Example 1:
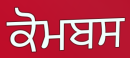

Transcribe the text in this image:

ਕੋਮਬਸ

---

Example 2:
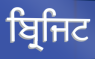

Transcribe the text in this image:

ਬ੍ਰਿਜਿਟ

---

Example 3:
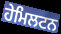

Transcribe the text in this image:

ਹੇਮਿਲਟਨ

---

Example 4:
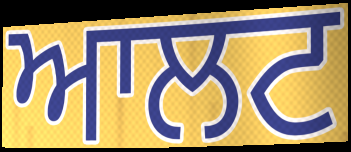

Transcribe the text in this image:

ਆਲਟ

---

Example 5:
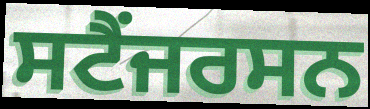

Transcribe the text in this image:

ਸਟੈਂਜਰਸਨ